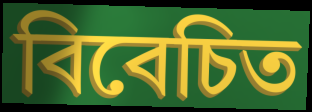
বিবেচিত